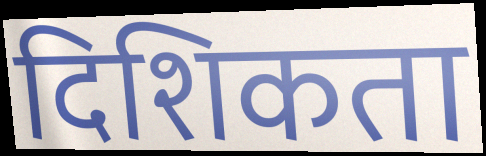
दिशिकता